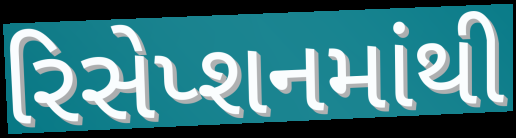
રિસેપ્શનમાંથી